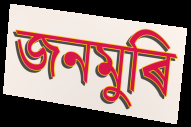
জনমুৰি